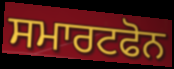
ਸਮਾਰਟਫੋਨ